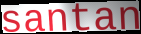
santan